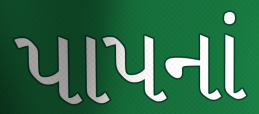
પાપનાં